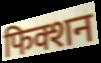
फिक्‍शन